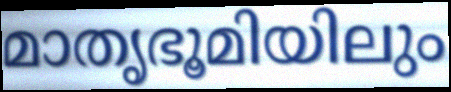
മാതൃഭൂമിയിലും